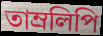
তাম্রলিপি